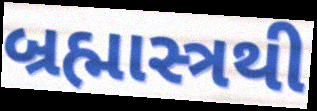
બ્રહ્માસ્ત્રથી